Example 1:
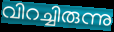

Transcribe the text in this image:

വിറച്ചിരുന്നു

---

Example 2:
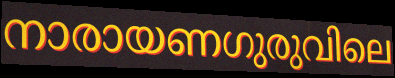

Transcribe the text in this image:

നാരായണഗുരുവിലെ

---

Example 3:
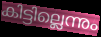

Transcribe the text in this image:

കിട്ടില്ലെന്നും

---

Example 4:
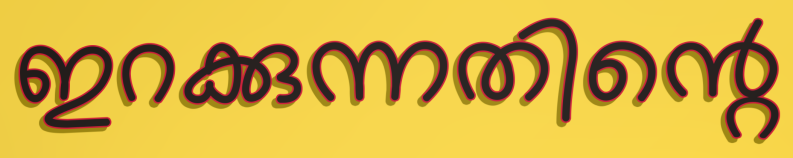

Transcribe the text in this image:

ഇറക്കുന്നതിന്റെ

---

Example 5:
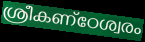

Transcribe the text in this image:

ശ്രീകണ്‌ഠേശ്വരം